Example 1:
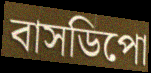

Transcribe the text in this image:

বাসডিপো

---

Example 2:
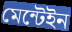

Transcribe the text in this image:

মেন্টেইন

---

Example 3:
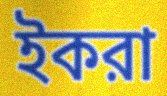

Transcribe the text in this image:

ইকরা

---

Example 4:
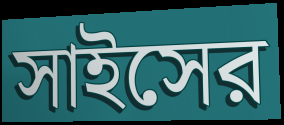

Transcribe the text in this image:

সাইসের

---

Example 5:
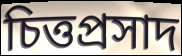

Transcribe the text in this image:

চিত্তপ্রসাদ